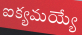
ఐక్యమయ్యే